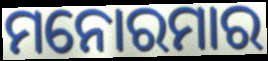
ମନୋରମାର